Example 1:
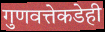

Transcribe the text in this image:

गुणवत्तेकडेही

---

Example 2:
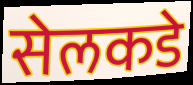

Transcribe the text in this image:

सेलकडे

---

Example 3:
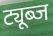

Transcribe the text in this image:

ट्यूब्ज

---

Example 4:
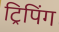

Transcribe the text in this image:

ट्रिपिंग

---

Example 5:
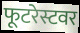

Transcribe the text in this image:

फूटरेस्टवर